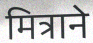
मित्राने